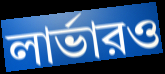
লার্ভারও